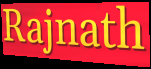
Rajnath